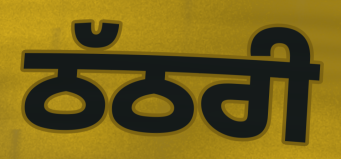
ਠੱਠਰੀ